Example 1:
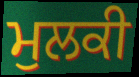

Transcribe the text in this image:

ਮੁਲਕੀ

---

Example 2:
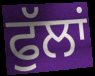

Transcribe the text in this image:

ਫੁੱਲਾਂ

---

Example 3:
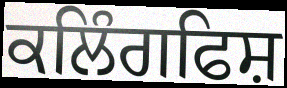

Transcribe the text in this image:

ਕਲਿੰਗਫਿਸ਼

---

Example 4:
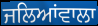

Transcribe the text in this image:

ਜਲਿਆਂਵਾਲਾ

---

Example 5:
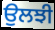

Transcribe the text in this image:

ਉਲਝੀ